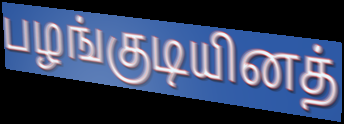
பழங்குடியினத்